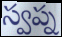
స్వప్న